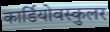
कार्डियोवस्कुलर